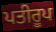
ਪਤੀਰੂਪ